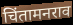
चिंतामनराव